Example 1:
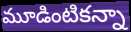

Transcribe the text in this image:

మూడింటికన్నా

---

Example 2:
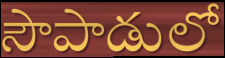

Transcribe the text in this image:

సౌపాడులో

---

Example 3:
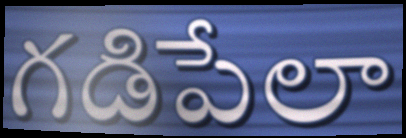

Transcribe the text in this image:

గడిపేలా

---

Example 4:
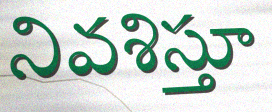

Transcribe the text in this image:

నివశిస్తూ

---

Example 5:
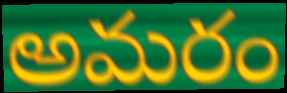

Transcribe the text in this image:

అమరం